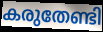
കരുതേണ്ടി